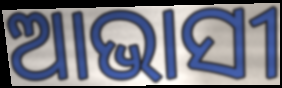
ଆଭାସୀ